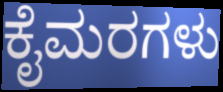
ಕೈಮರಗಳು